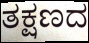
ತಕ್ಷಣದ